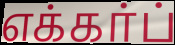
எக்கர்ப்